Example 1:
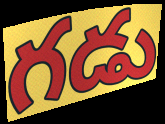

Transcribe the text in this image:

గడు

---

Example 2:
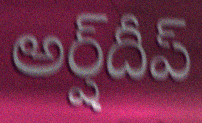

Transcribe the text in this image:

అర్ష్‌దీప్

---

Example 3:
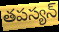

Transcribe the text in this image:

తపస్యన్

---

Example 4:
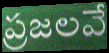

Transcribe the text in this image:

ప్రజలవే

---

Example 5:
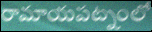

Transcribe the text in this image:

రామాయపట్నంలో